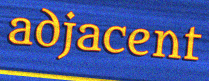
adjacent